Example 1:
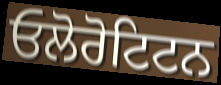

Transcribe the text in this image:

ਓਲੋਰੋਟਿਟਨ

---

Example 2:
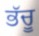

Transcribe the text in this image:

ਭੱਚੂ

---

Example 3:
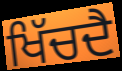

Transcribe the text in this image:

ਖਿੱਚਦੈ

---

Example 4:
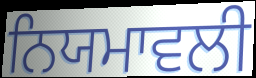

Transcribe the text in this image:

ਨਿਯਮਾਵਲੀ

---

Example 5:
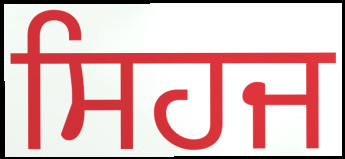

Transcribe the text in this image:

ਸਿਹਜ